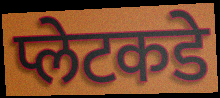
प्लेटकडे